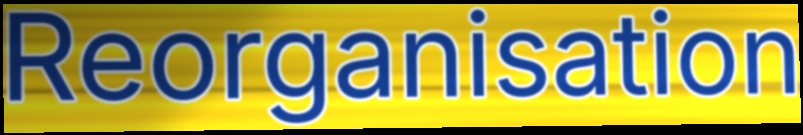
Reorganisation